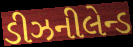
ડીઝનીલેન્ડ